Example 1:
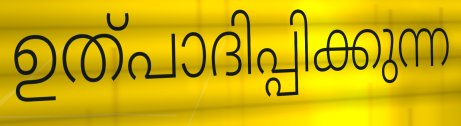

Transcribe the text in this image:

ഉത്പാദിപ്പിക്കുന്ന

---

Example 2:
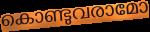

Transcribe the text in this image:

കൊണ്ടുവരാമോ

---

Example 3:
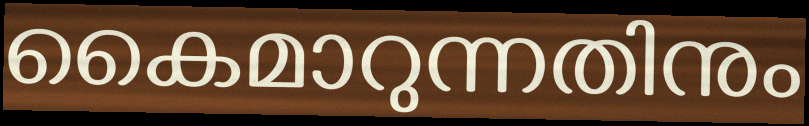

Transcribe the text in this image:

കൈമാറുന്നതിനും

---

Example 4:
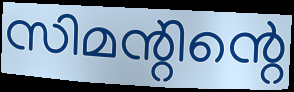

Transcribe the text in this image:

സിമന്റിന്റെ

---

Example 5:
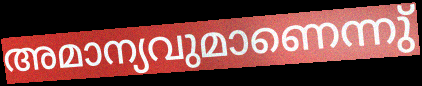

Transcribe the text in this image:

അമാന്യവുമാണെന്നു്